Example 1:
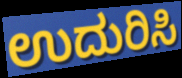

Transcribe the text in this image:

ಉದುರಿಸಿ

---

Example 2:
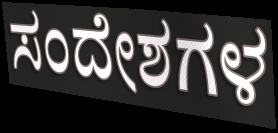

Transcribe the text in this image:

ಸಂದೇಶಗಳ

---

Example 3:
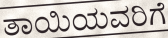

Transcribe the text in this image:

ತಾಯಿಯವರಿಗೆ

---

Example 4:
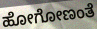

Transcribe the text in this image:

ಹೋಗೋಣಂತೆ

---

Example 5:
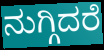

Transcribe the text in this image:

ನುಗ್ಗಿದರೆ